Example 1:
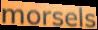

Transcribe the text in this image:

morsels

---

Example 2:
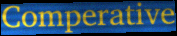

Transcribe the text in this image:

Comperative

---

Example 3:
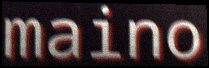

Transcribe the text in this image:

maino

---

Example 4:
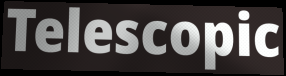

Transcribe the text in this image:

Telescopic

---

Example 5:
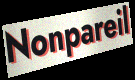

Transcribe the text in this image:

Nonpareil